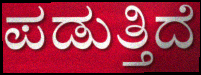
ಪಡುತ್ತಿದೆ